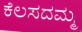
ಕೆಲಸದಮ್ಮ